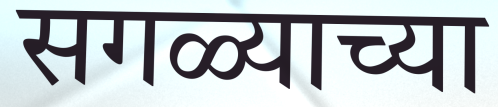
सगळ्याच्या